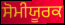
ਸੋਮੀਯੂਰਕ